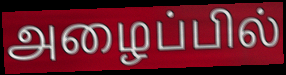
அழைப்பில்